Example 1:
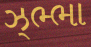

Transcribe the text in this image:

ઝ્ભ્ભા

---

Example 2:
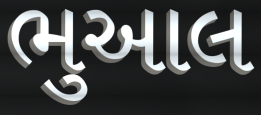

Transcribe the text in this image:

ભુઆલ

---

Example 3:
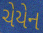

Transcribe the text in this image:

ચેયેન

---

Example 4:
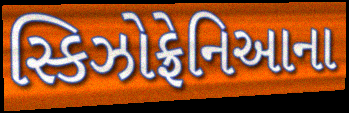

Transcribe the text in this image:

સ્કિઝોફ્રેનિઆના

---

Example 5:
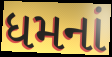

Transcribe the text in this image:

ધમનાં